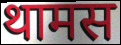
थामस